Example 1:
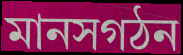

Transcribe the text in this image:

মানসগঠন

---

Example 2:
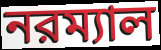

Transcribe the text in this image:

নরম্যাল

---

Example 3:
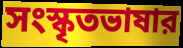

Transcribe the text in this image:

সংস্কৃতভাষার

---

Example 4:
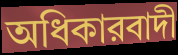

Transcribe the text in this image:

অধিকারবাদী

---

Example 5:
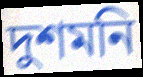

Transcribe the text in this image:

দুশমনি